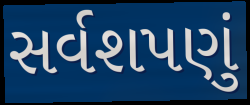
સર્વશપણું